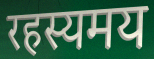
रहस्यमय